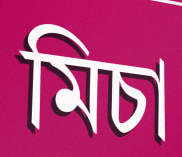
মিচা